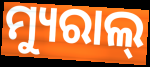
ମ୍ୟୁରାଲ୍